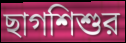
ছাগশিশুর